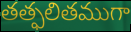
తత్ఫలితముగా